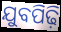
ଯୁବପିଢ଼ି